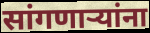
सांगणार्‍यांना